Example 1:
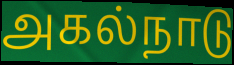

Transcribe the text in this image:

அகல்நாடு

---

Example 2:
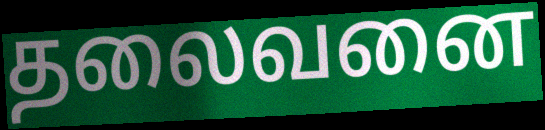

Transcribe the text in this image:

தலைவனை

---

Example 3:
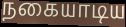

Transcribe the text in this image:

நகையாடிய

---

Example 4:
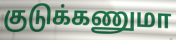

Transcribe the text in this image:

குடுக்கணுமா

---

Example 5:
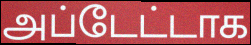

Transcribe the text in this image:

அப்டேட்டாக